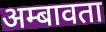
अम्बावता